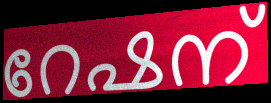
റേഷന്